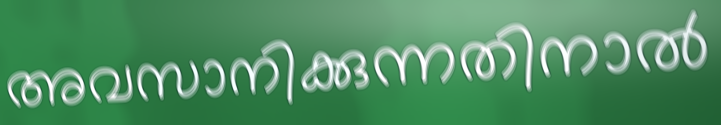
അവസാനിക്കുന്നതിനാൽ